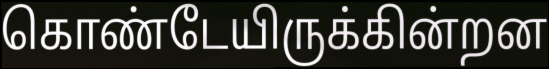
கொண்டேயிருக்கின்றன